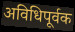
अविधिपूर्वक